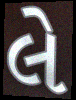
લે